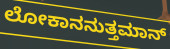
ಲೋಕಾನನುತ್ತಮಾನ್